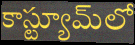
కాస్ట్యూమ్‌లో